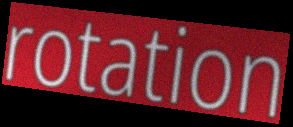
rotation